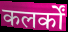
कलर्कों